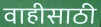
वाहीसाठी